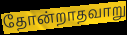
தோன்றாதவாறு